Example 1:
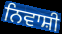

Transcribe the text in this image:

ਨਿਵਾਸ਼ੀ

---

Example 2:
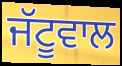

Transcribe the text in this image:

ਜੱਟੂਵਾਲ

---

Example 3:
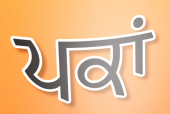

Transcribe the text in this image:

ਪਕਾਂ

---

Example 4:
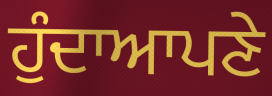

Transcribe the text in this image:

ਹੁੰਦਾਆਪਣੇ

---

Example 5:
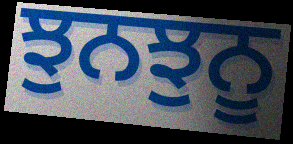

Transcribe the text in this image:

ਝੁਨਝੁਨੂ